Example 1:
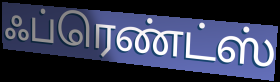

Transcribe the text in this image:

ஃப்ரெண்ட்ஸ்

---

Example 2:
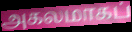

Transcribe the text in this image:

அகலமாகப்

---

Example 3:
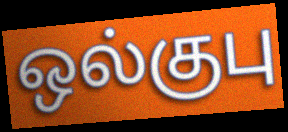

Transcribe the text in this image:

ஒல்குபு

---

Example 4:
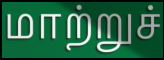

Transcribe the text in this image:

மாற்றுச்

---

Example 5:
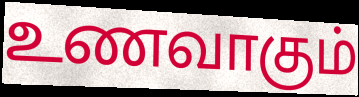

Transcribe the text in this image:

உணவாகும்